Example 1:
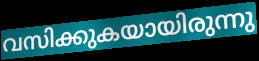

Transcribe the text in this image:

വസിക്കുകയായിരുന്നു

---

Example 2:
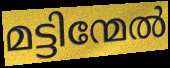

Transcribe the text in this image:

മട്ടിന്മേൽ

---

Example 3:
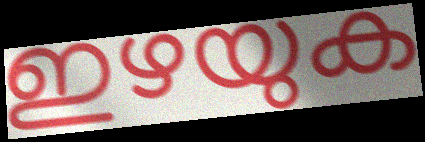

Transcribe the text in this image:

ഇഴയുക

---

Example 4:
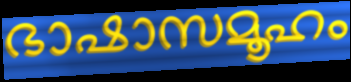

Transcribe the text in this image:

ഭാഷാസമൂഹം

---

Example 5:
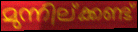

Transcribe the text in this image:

മുന്നില്ക്കണ്ട്